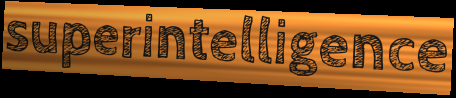
superintelligence